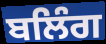
ਬਲਿੰਗ